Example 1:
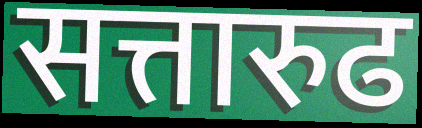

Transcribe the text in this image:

सत्तारुढ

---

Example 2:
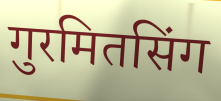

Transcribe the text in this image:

गुरमितसिंग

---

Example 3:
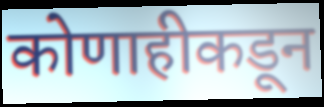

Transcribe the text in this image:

कोणाहीकडून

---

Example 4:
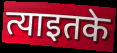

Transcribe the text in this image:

त्याइतके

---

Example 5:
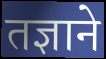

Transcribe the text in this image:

तज्ञाने